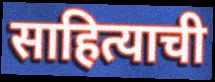
साहित्याची